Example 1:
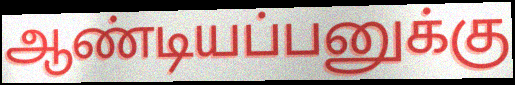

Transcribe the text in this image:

ஆண்டியப்பனுக்கு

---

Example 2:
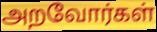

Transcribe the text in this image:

அறவோர்கள்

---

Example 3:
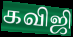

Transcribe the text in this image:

கவிஜி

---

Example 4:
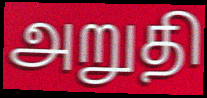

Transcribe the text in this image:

அறுதி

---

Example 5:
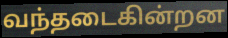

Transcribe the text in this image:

வந்தடைகின்றன